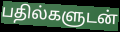
பதில்களுடன்